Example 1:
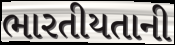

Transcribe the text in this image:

ભારતીયતાની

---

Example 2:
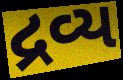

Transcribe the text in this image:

દ્રવ્ય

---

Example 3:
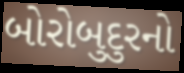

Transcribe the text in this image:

બોરોબુદુરનો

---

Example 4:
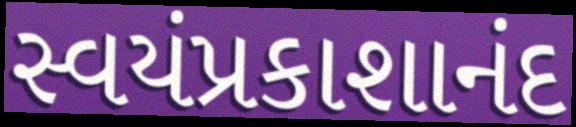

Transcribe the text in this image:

સ્વયંપ્રકાશાનંદ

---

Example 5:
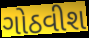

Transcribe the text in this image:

ગોઠવીશ